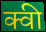
क्वी